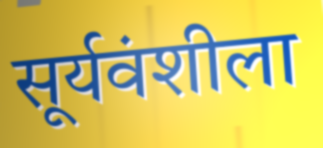
सूर्यवंशीला